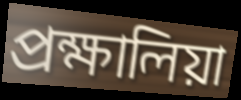
প্রক্ষালিয়া